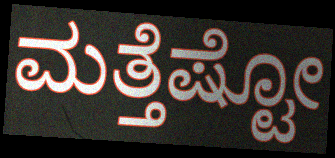
ಮತ್ತೆಷ್ಟೋ